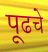
पूढचे